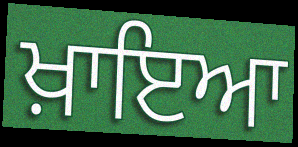
ਖ਼ਾਇਆ